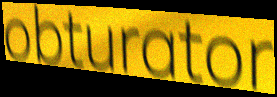
obturator